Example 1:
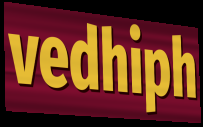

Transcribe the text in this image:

vedhiph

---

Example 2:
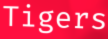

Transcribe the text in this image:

Tigers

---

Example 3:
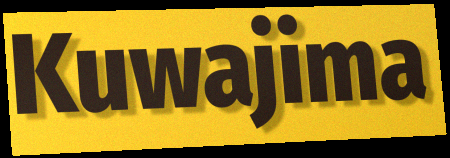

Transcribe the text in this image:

Kuwajima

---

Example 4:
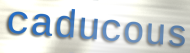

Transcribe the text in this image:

caducous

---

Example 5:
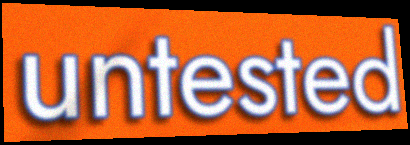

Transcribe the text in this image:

untested